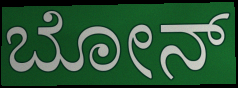
ಬೋನ್